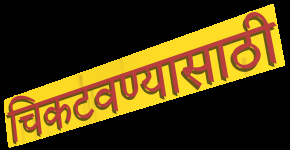
चिकटवण्यासाठी